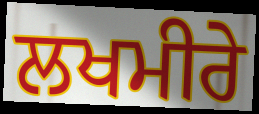
ਲਖਮੀਰੇ